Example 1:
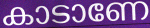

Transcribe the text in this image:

കാടാണേ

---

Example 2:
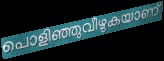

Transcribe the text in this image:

പൊളിഞ്ഞുവീഴുകയാണ്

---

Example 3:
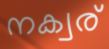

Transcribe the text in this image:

നക്വര്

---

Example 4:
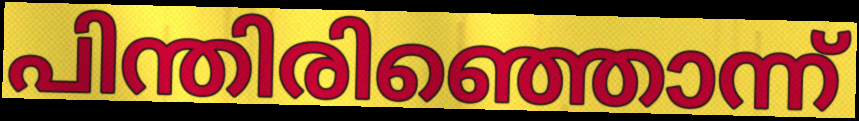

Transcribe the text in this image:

പിന്തിരിഞ്ഞൊന്ന്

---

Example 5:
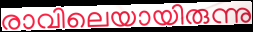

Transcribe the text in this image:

രാവിലെയായിരുന്നു